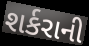
શર્કરાની